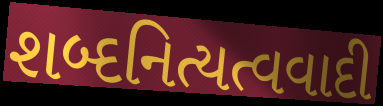
શબ્દનિત્યત્વવાદી